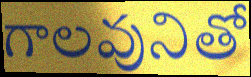
గాలవునితో